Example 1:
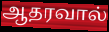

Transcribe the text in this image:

ஆதரவால்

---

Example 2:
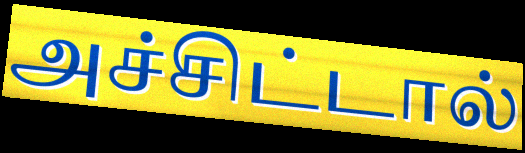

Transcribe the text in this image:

அச்சிட்டால்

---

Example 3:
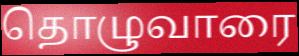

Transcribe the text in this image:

தொழுவாரை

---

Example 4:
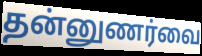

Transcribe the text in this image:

தன்னுணர்வை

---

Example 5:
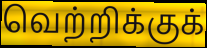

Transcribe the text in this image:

வெற்றிக்குக்